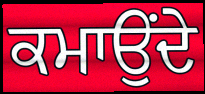
ਕਮਾਉਂਦੇ